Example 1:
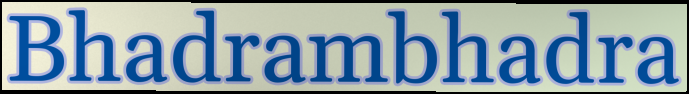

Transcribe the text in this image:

Bhadrambhadra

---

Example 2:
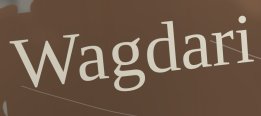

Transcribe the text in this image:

Wagdari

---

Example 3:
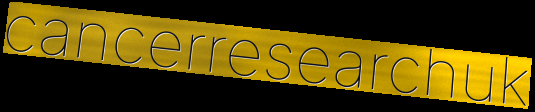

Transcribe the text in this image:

cancerresearchuk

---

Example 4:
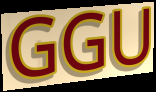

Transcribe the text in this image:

GGU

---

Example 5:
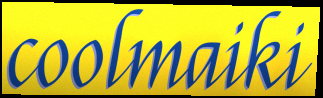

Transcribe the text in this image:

coolmaiki